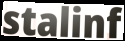
stalinf